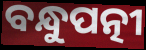
ବନ୍ଧୁପତ୍ନୀ